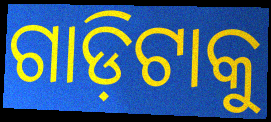
ଗାଡ଼ିଟାକୁ